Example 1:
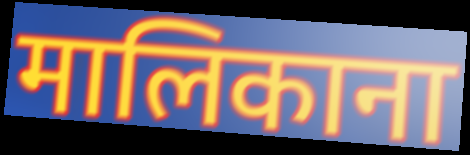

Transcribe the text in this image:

मालिकाना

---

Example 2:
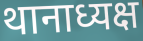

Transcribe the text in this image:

थानाध्यक्ष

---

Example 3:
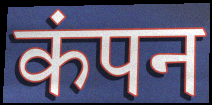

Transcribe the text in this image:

कंपन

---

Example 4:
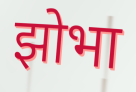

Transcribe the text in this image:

झोभा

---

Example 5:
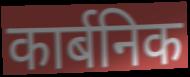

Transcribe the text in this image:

कार्बनिक